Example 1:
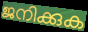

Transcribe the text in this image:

ജനിക്കുക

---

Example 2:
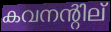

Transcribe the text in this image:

കവനന്റില്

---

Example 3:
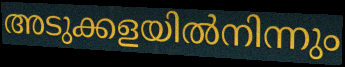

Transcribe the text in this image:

അടുക്കളയിൽനിന്നും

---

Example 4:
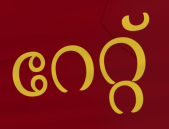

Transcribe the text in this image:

റേറ്റ്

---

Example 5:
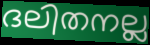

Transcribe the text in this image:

ദലിതനല്ല